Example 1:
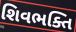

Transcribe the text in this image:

શિવભક્તિ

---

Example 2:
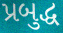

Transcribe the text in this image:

પ્રબુદ્ધ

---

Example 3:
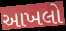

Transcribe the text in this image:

આખલો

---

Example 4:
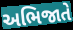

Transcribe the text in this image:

અભિજાતે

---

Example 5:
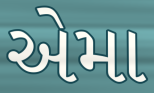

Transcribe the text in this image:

એમા